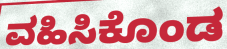
ವಹಿಸಿಕೊಂಡ